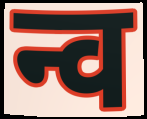
न्व